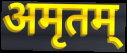
अमृतम्